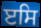
ੲਸਿ